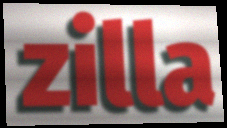
zilla